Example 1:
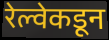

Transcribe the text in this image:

रेल्वेकडून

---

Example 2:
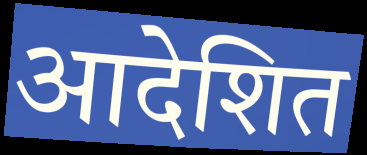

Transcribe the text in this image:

आदेशित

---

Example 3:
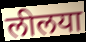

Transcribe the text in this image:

लीलया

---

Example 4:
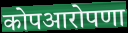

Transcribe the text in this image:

कोपआरोपणा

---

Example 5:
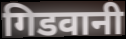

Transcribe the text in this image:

गिडवानी